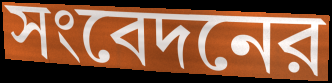
সংবেদনের